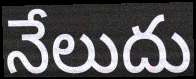
నేలుదు